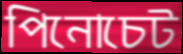
পিনোচেট